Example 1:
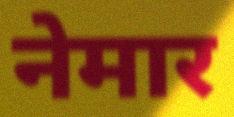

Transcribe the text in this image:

नेमार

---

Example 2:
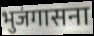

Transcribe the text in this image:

भुजंगासना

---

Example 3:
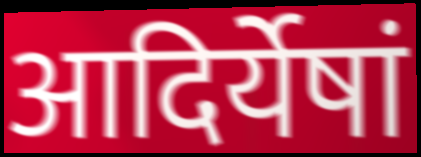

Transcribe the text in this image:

आदिर्येषां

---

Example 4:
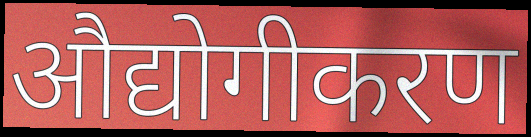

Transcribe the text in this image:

औद्योगीकरण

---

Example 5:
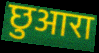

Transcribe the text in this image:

छुआरा